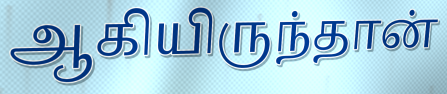
ஆகியிருந்தான்